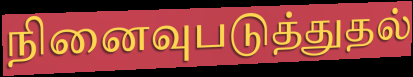
நினைவுபடுத்துதல்